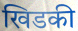
खिडकी